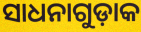
ସାଧନାଗୁଡ଼ାକ